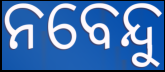
ନବେନ୍ଦୁ